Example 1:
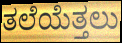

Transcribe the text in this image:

ತಲೆಯೆತ್ತಲು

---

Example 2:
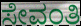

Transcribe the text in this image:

ಸೇವಂತಿ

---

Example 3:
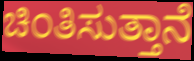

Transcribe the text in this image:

ಚಿಂತಿಸುತ್ತಾನೆ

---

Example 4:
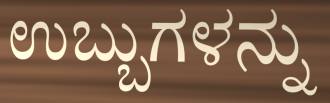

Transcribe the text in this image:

ಉಬ್ಬುಗಳನ್ನು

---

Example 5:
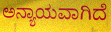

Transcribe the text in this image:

ಅನ್ಯಾಯವಾಗಿದೆ